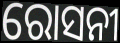
ରୋସନୀ